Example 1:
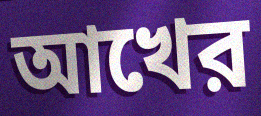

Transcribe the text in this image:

আখের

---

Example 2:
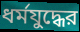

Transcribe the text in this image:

ধর্মযুদ্ধের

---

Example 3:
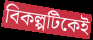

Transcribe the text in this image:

বিকল্পটিকেই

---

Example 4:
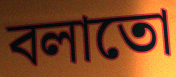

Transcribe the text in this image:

বলাতো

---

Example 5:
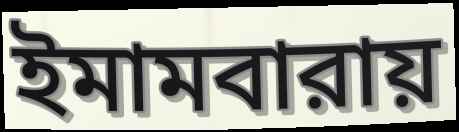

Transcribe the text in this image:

ইমামবারায়